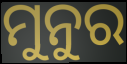
ମୁନୁର